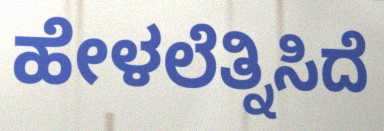
ಹೇಳಲೆತ್ನಿಸಿದೆ